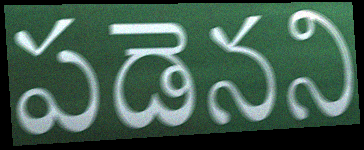
పడెనని